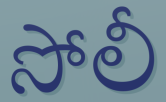
సోలీ